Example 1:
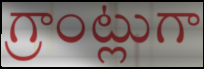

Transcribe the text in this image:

గ్రాంట్లుగా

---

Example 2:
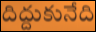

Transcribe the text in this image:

దిద్దుకునేది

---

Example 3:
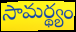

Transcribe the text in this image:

సామర్థ్యం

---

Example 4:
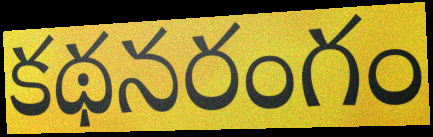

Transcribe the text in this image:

కథనరంగం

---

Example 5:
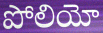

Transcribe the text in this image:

పోలియో